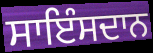
ਸਾਇੰਸਦਾਨ